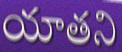
యాతని